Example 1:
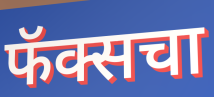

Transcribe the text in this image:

फॅक्सचा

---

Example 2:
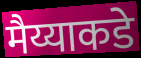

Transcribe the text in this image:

मैय्याकडे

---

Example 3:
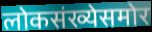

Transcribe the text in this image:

लोकसंख्येसमोर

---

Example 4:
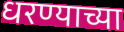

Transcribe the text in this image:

धरण्याच्या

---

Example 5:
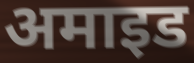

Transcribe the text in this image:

अमाइड